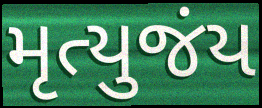
મૃત્યુજંય